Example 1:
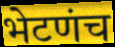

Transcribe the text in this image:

भेटणंच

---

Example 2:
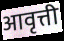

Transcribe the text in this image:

आवृत्ती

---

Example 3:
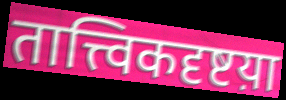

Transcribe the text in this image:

तात्त्विकदृष्टय़ा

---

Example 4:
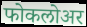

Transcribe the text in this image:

फोकलोअर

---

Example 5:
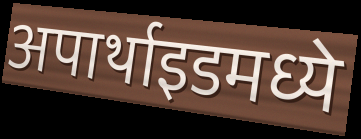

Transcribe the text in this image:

अपार्थाइडमध्ये